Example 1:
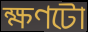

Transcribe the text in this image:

ক্ষণটো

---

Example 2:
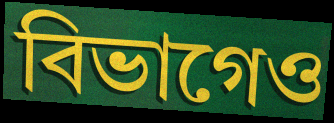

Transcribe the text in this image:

বিভাগেও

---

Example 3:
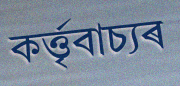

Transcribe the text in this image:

কৰ্ত্তৃবাচ্যৰ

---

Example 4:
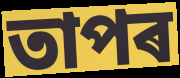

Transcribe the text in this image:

তাপৰ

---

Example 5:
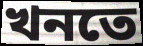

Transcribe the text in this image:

খনতে